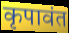
कृपावंत